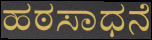
ಹಠಸಾಧನೆ